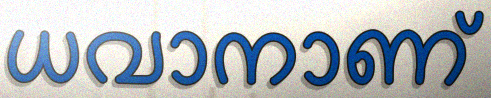
ധവാനാണ്